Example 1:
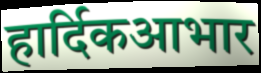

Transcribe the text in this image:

हार्दिकआभार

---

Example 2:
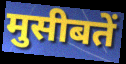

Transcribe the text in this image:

मुसीबतें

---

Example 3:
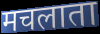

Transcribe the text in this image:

मचलाता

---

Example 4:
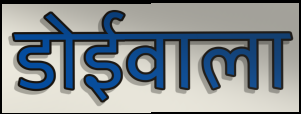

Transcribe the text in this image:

डोईवाला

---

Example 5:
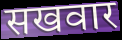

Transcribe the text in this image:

सखवार